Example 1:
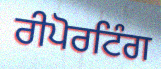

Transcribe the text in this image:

ਰੀਪੋਰਟਿੰਗ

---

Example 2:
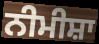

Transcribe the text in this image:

ਨੀਮੀਸ਼ਾ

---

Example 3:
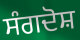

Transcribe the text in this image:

ਸੰਗਦੋਸ਼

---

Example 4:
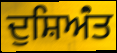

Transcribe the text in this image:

ਦੁਸ਼ਿਅਂੰਤ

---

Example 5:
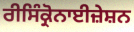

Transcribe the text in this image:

ਰੀਸਿੰਕ੍ਰੋਨਾਈਜ਼ੇਸ਼ਨ